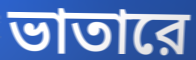
ভাতারে